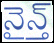
నైన్త్